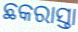
ଛକରାସ୍ତା